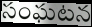
సంఘటన